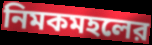
নিমকমহলের